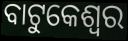
ବାଟୁକେଶ୍ୱର